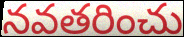
నవతరించు